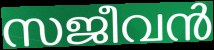
സജീവൻ